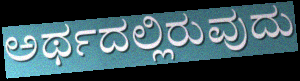
ಅರ್ಥದಲ್ಲಿರುವುದು